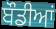
ਬੌਡੀਆਂ